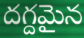
దగ్దమైన